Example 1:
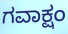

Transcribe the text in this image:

ಗವಾಕ್ಷಂ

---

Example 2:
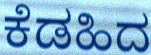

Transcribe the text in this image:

ಕೆಡಹಿದ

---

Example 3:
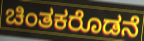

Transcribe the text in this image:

ಚಿಂತಕರೊಡನೆ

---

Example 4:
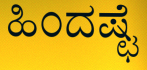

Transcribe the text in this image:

ಹಿಂದಷ್ಟೆ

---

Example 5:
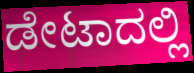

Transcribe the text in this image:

ಡೇಟಾದಲ್ಲಿ